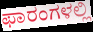
ಫಾರಂಗಳಲ್ಲಿ